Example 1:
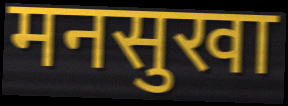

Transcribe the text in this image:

मनसुखा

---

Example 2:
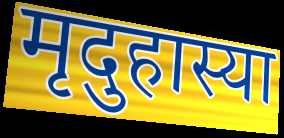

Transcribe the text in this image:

मृदुहास्या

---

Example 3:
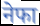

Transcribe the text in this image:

नेफा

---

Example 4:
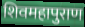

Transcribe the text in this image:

शिवमहापुराण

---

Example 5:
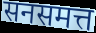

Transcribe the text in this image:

सनसमत्त